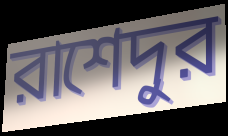
রাশেদুর